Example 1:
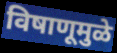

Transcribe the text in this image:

विषाणूमुळे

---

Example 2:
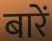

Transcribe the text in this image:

बारें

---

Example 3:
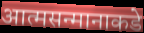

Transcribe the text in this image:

आत्मसन्मानाकडे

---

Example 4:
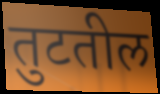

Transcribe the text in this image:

तुटतील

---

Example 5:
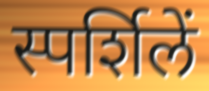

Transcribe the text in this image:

स्पर्शिलें